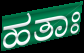
ಹತಾಃ